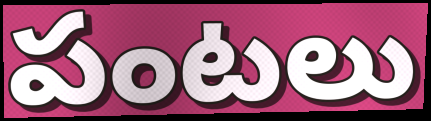
పంటలు